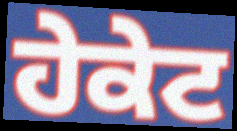
ਹੇਕੇਟ